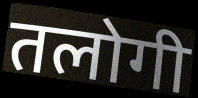
तलोगी